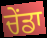
ਚੇਂਡਾ